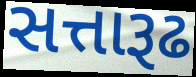
સત્તારૂઢ